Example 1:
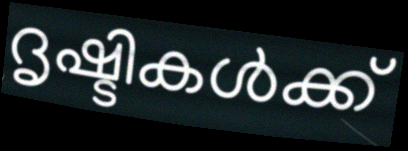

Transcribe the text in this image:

ദൃഷ്ടികൾക്ക്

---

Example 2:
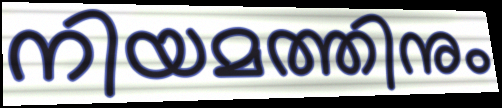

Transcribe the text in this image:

നിയമത്തിനും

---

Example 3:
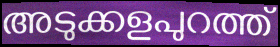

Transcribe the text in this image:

അടുക്കളപുറത്ത്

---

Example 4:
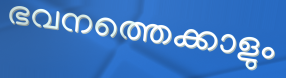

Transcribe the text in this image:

ഭവനത്തെക്കാളും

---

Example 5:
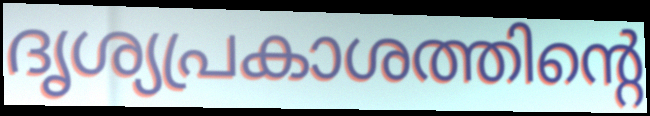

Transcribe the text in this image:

ദൃശ്യപ്രകാശത്തിന്റെ